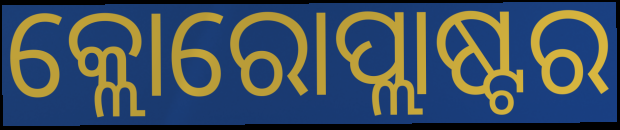
କ୍ଲୋରୋପ୍ଲାଷ୍ଟର